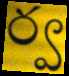
ర్వ